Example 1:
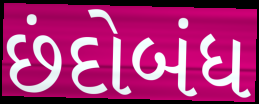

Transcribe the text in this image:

છંદોબંધ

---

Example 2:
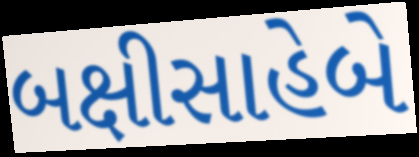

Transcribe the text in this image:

બક્ષીસાહેબે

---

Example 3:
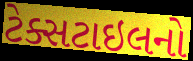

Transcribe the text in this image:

ટેક્સટાઇલનો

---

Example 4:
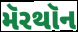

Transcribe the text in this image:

મૅરથૉન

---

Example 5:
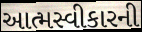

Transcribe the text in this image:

આત્મસ્વીકારની